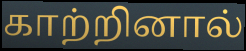
காற்றினால்